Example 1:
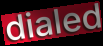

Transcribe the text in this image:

dialed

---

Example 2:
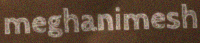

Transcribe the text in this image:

meghanimesh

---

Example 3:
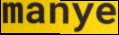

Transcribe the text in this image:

manye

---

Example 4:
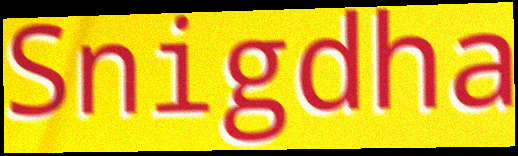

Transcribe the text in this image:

Snigdha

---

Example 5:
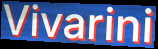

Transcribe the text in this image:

Vivarini